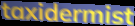
taxidermist